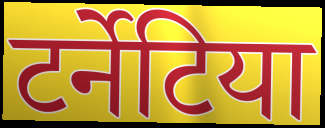
टर्नेटिया